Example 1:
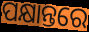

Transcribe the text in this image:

ପକ୍ଷାନ୍ତରେ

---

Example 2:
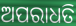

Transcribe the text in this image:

ଅପରାଧତି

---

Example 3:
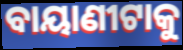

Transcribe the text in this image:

ବାୟାଣୀଟାକୁ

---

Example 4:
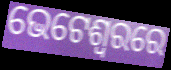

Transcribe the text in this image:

ଭେଟେଶ୍ୱରରେ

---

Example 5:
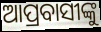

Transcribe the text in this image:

ଆପ୍ରବାସୀଙ୍କୁ